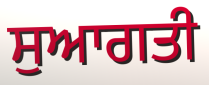
ਸੁਆਗਤੀ